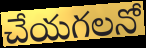
చేయగలనో